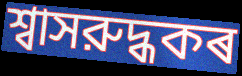
শ্বাসৰুদ্ধকৰ